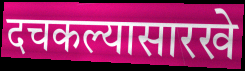
दचकल्यासारखे